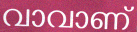
വാവാണ്